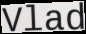
Vlad